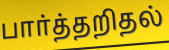
பார்த்தறிதல்